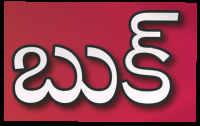
బుక్